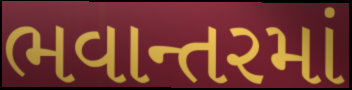
ભવાન્તરમાં